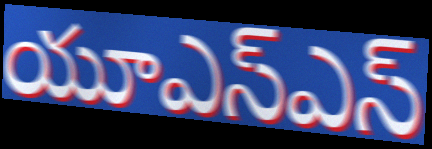
యూఎస్ఎస్